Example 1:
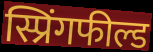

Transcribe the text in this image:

स्प्रिंगफील्ड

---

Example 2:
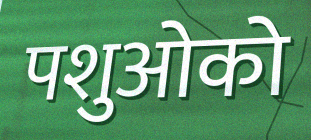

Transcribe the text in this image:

पशुओको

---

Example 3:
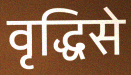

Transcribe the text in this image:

वृद्धिसे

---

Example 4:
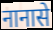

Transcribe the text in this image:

नानासे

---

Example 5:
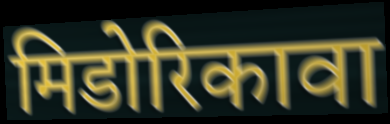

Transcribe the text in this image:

मिडोरिकावा